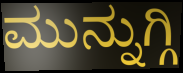
ಮುನ್ನುಗ್ಗಿ